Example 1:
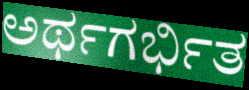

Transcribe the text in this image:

ಅರ್ಥಗರ್ಭಿತ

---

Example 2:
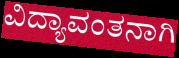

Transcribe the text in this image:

ವಿದ್ಯಾವಂತನಾಗಿ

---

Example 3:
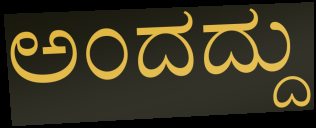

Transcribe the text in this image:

ಅಂದದ್ದು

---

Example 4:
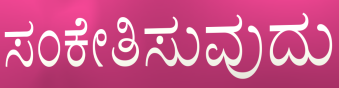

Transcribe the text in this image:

ಸಂಕೇತಿಸುವುದು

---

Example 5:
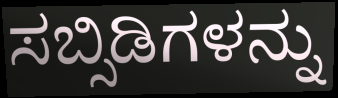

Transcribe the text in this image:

ಸಬ್ಸಿಡಿಗಳನ್ನು